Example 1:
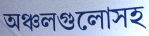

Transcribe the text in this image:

অঞ্চলগুলোসহ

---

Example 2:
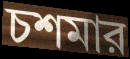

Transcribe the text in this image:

চশমার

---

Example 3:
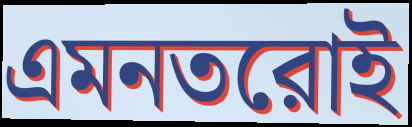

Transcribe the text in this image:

এমনতরোই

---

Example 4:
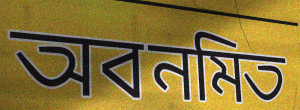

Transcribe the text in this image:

অবনমিত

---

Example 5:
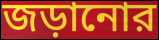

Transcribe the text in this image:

জড়ানোর